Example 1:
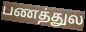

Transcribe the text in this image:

பணத்துல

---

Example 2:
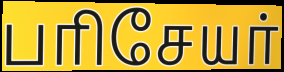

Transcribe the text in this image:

பரிசேயர்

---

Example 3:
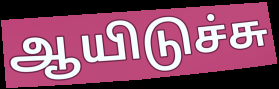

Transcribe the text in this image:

ஆயிடுச்சு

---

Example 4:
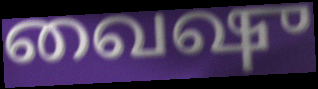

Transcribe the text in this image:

வைஷு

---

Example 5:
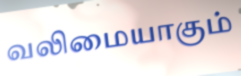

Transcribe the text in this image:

வலிமையாகும்